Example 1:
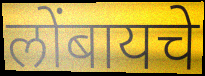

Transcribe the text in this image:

लोंबायचे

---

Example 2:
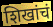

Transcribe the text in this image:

शिखांचं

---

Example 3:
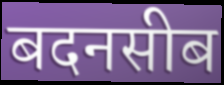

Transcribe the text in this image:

बदनसीब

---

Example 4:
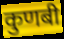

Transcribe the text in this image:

कुणबी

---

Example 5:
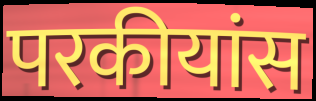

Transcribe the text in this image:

परकीयांस